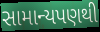
સામાન્યપણથી